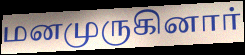
மனமுருகினார்